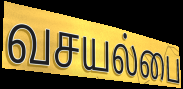
வசயல்பை